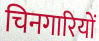
चिनगारियों